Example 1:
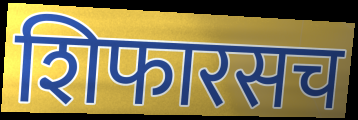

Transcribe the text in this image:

शिफारसच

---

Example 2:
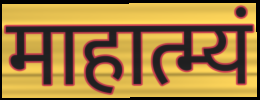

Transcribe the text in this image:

माहात्म्यं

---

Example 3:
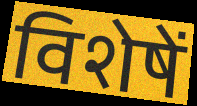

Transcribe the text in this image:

विशेषें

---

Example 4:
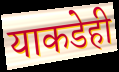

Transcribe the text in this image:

याकडेही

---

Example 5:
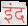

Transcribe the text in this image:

इंद